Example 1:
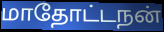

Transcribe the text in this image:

மாதோட்டநன்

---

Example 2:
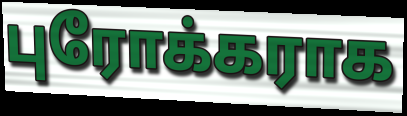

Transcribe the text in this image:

புரோக்கராக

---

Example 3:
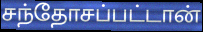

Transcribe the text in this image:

சந்தோசப்பட்டான்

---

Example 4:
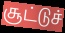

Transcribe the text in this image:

சூட்டுச்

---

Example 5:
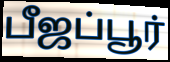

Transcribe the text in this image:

பீஜப்பூர்